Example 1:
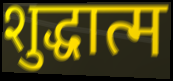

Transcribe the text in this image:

शुद्धात्म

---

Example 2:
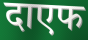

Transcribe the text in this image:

दाएफ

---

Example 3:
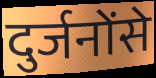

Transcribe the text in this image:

दुर्जनोंसे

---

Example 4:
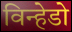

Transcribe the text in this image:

विन्हेडो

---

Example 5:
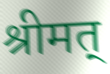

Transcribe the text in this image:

श्रीमत्